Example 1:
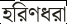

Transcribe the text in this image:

হরিণধরা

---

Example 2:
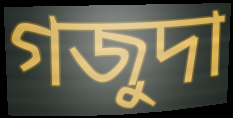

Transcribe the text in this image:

গজুদা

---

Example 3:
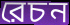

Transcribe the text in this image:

রেচন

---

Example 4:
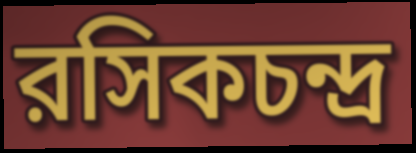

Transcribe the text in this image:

রসিকচন্দ্র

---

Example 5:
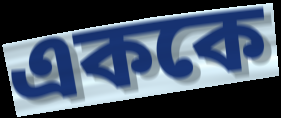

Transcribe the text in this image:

এককে